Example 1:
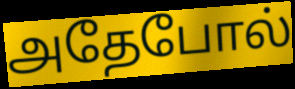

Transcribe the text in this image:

அதேபோல்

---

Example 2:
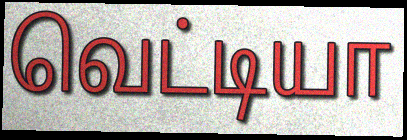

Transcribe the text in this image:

வெட்டியா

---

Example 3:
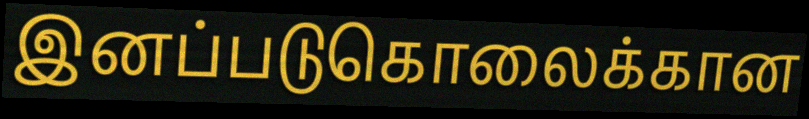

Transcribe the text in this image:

இனப்படுகொலைக்கான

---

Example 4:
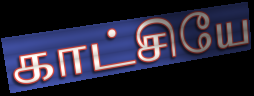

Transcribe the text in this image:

காட்சியே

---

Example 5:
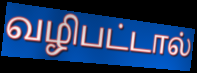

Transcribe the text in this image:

வழிபட்டால்